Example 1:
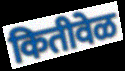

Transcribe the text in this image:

कितीवेळ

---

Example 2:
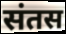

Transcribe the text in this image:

संतस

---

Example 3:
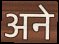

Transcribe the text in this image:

अने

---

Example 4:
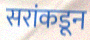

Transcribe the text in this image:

सरांकडून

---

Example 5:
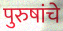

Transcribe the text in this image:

पुरुषांचे